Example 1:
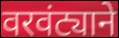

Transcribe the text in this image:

वरवंट्याने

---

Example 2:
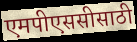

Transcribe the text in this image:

एमपीएससीसाठी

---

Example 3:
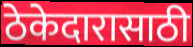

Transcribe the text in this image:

ठेकेदारासाठी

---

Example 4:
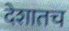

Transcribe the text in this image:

देशातच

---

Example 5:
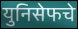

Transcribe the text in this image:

युनिसेफचे